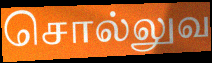
சொல்லுவ